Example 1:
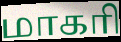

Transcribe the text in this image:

மாகரி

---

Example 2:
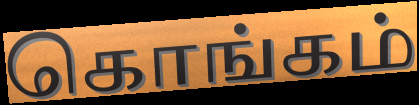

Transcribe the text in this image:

கொங்கம்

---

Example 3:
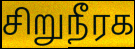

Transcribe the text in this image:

சிறுநீரக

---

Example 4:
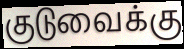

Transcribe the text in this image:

குடுவைக்கு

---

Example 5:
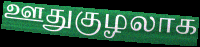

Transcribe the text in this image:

ஊதுகுழலாக